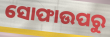
ସୋଫାଉପରୁ